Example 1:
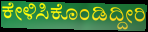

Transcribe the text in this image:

ಕೇಳಿಸಿಕೊಂಡಿದ್ದೀರಿ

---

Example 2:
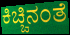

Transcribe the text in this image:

ಕಿಚ್ಚಿನಂತೆ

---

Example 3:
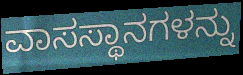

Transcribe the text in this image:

ವಾಸಸ್ಥಾನಗಳನ್ನು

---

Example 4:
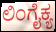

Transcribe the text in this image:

ಲಿಂಗೈಕ್ಯ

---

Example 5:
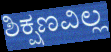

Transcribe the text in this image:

ಶಿಕ್ಷಣವಿಲ್ಲ